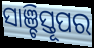
ସାଞ୍ଚିସ୍ତୂପର